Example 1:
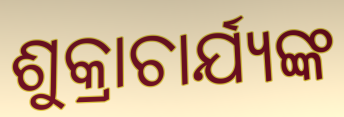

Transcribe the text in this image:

ଶୁକ୍ରାଚାର୍ଯ୍ୟଙ୍କ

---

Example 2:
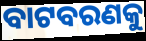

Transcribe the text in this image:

ବାଟବରଣକୁ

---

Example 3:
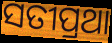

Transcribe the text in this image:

ସତୀପ୍ରଥା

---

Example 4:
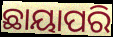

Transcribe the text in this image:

ଛାୟାପରି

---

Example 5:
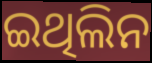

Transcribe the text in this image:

ଇଥିଲିନ